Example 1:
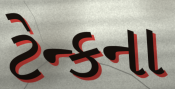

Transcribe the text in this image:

ટેન્કના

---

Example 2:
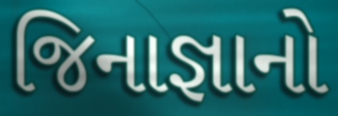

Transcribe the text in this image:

જિનાજ્ઞાનો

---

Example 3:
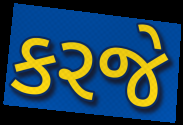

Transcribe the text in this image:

કરજે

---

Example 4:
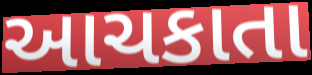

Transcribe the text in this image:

આચકાતા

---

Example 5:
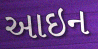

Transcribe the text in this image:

આઇન